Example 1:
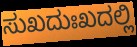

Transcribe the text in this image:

ಸುಖದುಃಖದಲ್ಲಿ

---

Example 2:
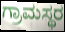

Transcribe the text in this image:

ಗ್ರಾಮಸ್ಥರ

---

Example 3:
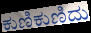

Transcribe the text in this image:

ಕುಣಿಕುಣಿದು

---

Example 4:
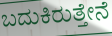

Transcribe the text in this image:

ಬದುಕಿರುತ್ತೇನೆ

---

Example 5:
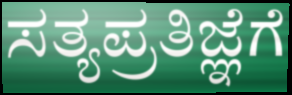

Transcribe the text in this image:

ಸತ್ಯಪ್ರತಿಜ್ಞೆಗೆ